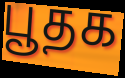
பூதக